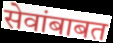
सेवांबाबत